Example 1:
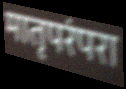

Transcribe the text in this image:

मातृपरंपरा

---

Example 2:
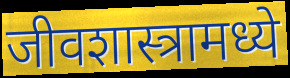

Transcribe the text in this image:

जीवशास्त्रामध्ये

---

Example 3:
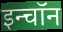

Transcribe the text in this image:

इन्चॉन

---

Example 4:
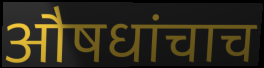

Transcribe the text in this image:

औषधांचाच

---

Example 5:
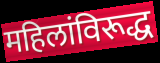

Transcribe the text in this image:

महिलांविरूद्ध